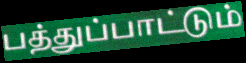
பத்துப்பாட்டும்